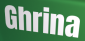
Ghrina